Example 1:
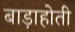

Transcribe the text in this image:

बाड़ाहोती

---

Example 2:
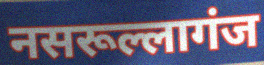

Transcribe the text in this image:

नसरूल्लागंज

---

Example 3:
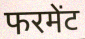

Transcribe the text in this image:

फरमेंट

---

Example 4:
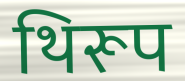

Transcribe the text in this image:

थिरूप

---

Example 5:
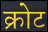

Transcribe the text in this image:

क्रोट